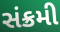
સંક્રમી